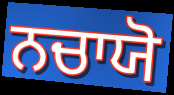
ਨਚਾਯੋ